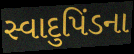
સ્વાદુપિંડના